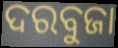
ଦରବୁଜା